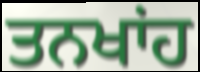
ਤਨਖਾਂਹ